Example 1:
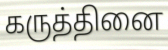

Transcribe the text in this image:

கருத்தினை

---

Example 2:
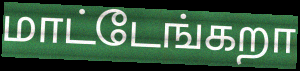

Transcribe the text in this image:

மாட்டேங்கறா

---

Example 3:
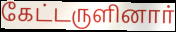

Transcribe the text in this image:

கேட்டருளினார்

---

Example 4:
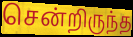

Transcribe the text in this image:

சென்றிருந்த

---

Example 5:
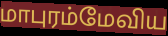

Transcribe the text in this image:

மாபுரம்மேவிய